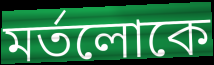
মর্তলোকে